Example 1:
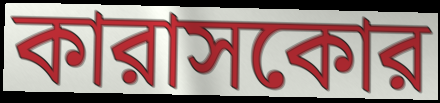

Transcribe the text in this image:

কারাসকোর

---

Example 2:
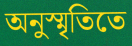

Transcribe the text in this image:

অনুস্মৃতিতে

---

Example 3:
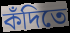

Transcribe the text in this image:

কঁদিতে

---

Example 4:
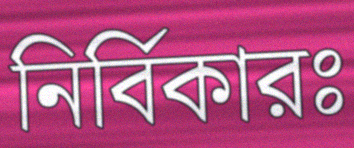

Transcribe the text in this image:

নির্বিকারঃ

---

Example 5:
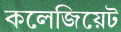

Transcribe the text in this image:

কলেজিয়েট